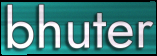
bhuter